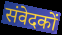
संवेदकों